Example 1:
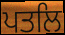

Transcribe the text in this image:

ਪਤਲਿ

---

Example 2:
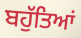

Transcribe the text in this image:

ਬਹੁੱਤਿਆਂ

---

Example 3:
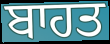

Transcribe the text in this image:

ਬਾਹਤ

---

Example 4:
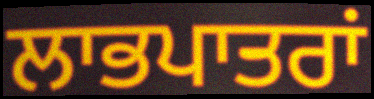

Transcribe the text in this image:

ਲਾਭਪਾਤਰਾਂ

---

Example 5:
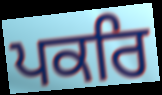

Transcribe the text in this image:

ਪਕਰਿ